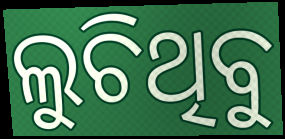
ଲୁଚିଥିବୁ